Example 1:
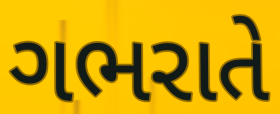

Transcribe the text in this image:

ગભરાતે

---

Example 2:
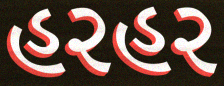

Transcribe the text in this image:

હરહર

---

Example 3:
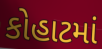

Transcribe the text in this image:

કોહાટમાં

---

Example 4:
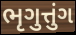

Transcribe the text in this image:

ભૃગુત્તુંગ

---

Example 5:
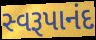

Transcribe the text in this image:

સ્વરૂપાનંદ